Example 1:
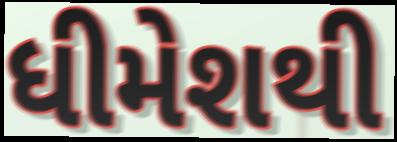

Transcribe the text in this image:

ધીમેશથી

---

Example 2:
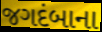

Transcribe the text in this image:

જગદંબાના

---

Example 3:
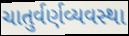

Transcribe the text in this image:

ચાતુર્વર્ણવ્યવસ્થા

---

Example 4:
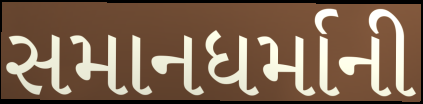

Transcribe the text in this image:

સમાનધર્માની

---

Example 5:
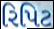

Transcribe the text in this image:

રિપિટ